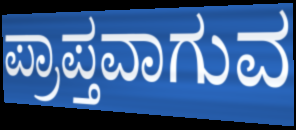
ಪ್ರಾಪ್ತವಾಗುವ